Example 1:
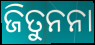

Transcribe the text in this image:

ଜିତୁନନା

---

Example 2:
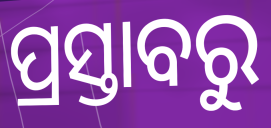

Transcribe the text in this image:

ପ୍ରସ୍ତାବରୁ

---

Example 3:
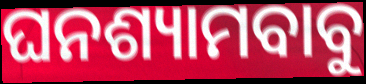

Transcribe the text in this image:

ଘନଶ୍ୟାମବାବୁ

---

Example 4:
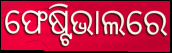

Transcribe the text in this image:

ଫେଷ୍ଟିଭାଲରେ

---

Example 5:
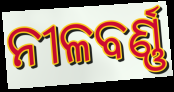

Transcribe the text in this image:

ନୀଳବର୍ଣ୍ଣ